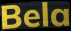
Bela